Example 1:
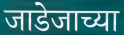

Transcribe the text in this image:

जाडेजाच्या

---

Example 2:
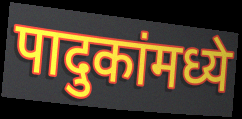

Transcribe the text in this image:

पादुकांमध्ये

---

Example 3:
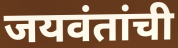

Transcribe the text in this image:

जयवंतांची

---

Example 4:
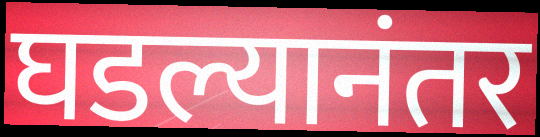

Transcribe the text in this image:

घडल्यानंतर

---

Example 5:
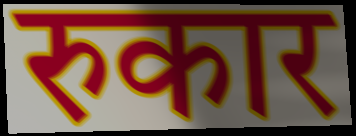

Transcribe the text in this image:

रुकार